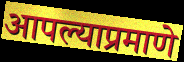
आपल्याप्रमाणे